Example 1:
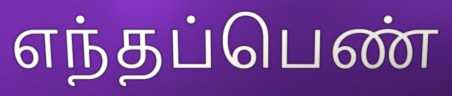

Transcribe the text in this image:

எந்தப்பெண்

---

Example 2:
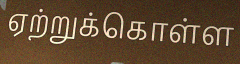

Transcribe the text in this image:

ஏற்றுக்கொள்ள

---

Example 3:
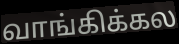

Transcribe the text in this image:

வாங்கிக்கல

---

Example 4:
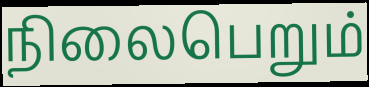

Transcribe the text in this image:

நிலைபெறும்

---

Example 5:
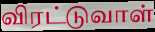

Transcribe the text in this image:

விரட்டுவாள்